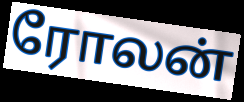
ரோலன்